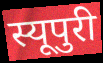
स्यूपुरी